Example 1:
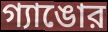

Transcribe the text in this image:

গ্যাঙোর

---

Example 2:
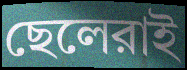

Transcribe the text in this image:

ছেলেরাই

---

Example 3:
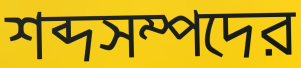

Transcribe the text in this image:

শব্দসম্পদের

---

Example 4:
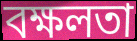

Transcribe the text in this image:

বক্ষলতা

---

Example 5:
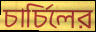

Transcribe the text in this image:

চার্চিলের